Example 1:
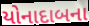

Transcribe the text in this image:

યોનાદાબના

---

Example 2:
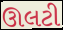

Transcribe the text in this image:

ઊલટી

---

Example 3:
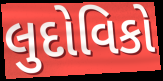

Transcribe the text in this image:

લુદોવિકો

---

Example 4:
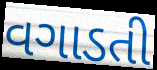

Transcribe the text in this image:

વગાડતી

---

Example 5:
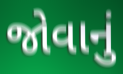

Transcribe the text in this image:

જોવાનું